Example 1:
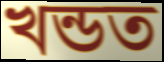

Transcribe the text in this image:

খন্ডত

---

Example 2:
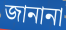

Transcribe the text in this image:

জানানা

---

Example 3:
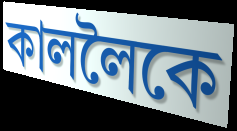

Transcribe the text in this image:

কাললৈকে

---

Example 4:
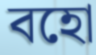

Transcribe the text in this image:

বহো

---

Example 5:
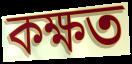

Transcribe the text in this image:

কক্ষত